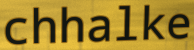
chhalke